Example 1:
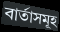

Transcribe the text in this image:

বাৰ্তাসমূহ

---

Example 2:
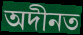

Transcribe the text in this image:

অদীনত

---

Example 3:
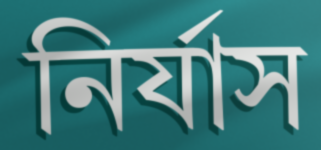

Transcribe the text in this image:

নিৰ্যাস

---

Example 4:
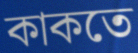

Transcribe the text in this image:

কাকতে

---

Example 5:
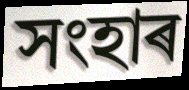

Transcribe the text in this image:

সংহাৰ